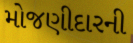
મોજણીદારની